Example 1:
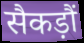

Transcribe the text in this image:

सैकड़ौं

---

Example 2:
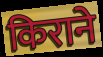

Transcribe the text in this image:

किराने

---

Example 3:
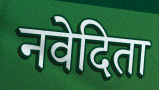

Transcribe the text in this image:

नवेदिता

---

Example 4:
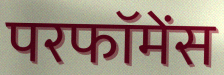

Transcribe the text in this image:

परफॉमेंस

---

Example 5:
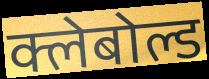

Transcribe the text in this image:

क्लेबोल्ड